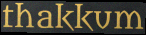
thakkum